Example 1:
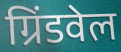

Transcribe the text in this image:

ग्रिंडवेल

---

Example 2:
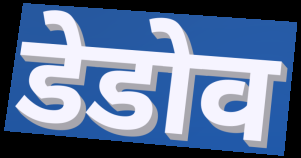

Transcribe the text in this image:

डेडोव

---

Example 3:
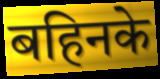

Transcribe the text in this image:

बहिनके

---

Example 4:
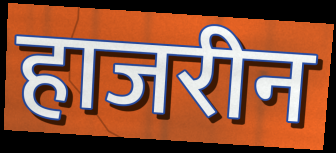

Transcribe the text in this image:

हाजरीन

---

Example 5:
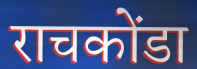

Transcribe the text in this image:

राचकोंडा